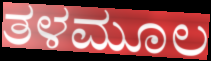
ತಳಮೂಲ